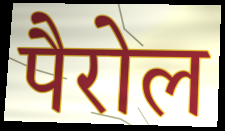
पैरोल